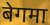
बेगमा